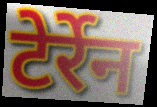
टेर्रेन